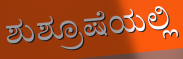
ಶುಶ್ರೂಷೆಯಲ್ಲಿ